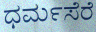
ಧರ್ಮಸೆರೆ